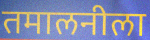
तमालनीला